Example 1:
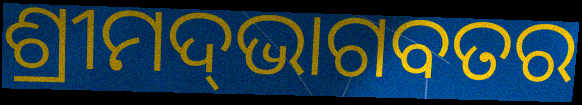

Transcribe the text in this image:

ଶ୍ରୀମଦ୍‌ଭାଗବତର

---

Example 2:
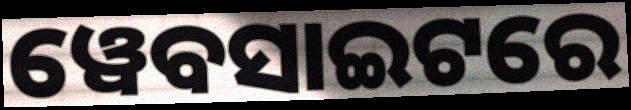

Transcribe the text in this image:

ୱେବସାଇଟରେ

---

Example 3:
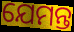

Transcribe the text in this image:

ଯେମନ୍ତ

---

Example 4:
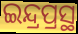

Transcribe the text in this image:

ଇନ୍ଦ୍ରପ୍ରସ୍ଥ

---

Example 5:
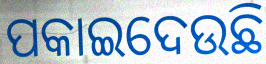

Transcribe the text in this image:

ପକାଇଦେଉଛି